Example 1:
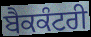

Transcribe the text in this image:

ਬੈਕਕੰਟਰੀ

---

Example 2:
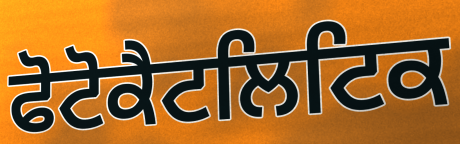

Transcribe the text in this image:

ਫੋਟੋਕੈਟਲਿਟਿਕ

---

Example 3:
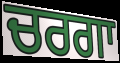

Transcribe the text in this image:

ਚਰਗਾ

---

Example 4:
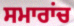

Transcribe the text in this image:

ਸਮਾਰਾਂਚ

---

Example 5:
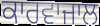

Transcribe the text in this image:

ਕਾਰਵਾਜਾਲ